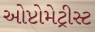
ઓપ્ટોમેટ્રીસ્ટ